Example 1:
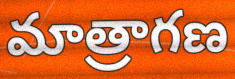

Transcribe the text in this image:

మాత్రాగణ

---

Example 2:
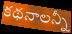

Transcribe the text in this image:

కథనాలన్నీ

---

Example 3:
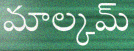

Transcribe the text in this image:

మాల్కమ్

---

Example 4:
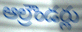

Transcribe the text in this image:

ఆల్రౌండర్లు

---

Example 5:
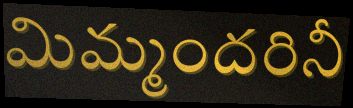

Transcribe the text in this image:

మిమ్మందరినీ